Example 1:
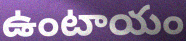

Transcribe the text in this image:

ఉంటాయం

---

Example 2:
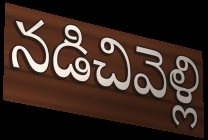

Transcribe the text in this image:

నడిచివెళ్లి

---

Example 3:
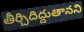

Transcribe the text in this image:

తీర్చిదిద్దుతానని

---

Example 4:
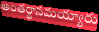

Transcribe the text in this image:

అంతర్థానమయ్యారు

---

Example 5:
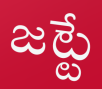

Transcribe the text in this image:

జట్టే